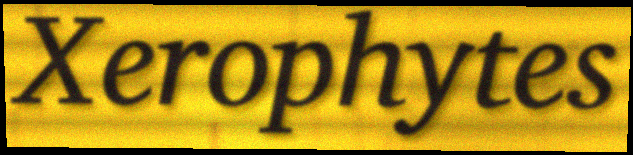
Xerophytes